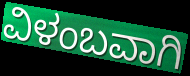
ವಿಳಂಬವಾಗಿ